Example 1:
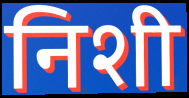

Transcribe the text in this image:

निशी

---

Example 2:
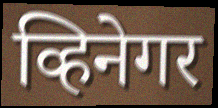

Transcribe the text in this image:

व्हिनेगर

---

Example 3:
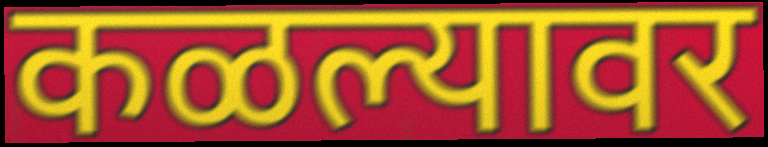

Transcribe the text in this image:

कळल्यावर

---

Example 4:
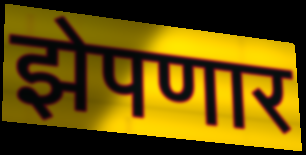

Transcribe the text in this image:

झेपणार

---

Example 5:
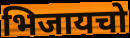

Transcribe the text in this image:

भिजायचो